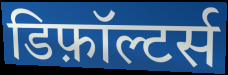
डिफ़ॉल्टर्स